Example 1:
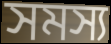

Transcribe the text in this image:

সমস্য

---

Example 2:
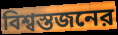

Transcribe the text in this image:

বিশ্বস্তজনের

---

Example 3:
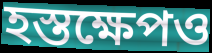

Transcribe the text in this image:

হস্তক্ষেপও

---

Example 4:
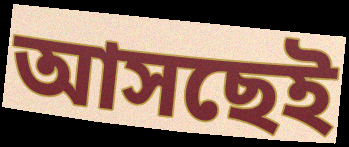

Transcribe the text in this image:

আসছেই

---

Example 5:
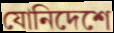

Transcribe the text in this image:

যোনিদেশে